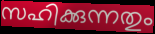
സഹിക്കുന്നതും